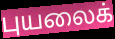
புயலைக்